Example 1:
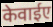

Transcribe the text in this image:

केवाईए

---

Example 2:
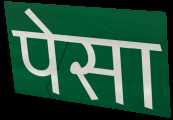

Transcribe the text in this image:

पेसा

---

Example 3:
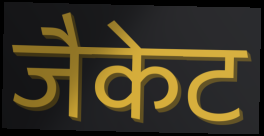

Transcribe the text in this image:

जैकेट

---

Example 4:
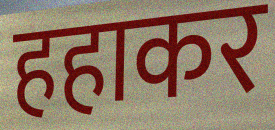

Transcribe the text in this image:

हहाकर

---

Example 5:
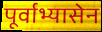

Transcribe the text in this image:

पूर्वाभ्यासेन